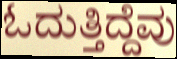
ಓದುತ್ತಿದ್ದೆವು